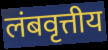
लंबवृत्तीय